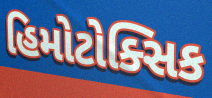
હિમોટોક્સિક